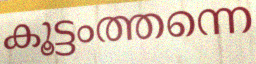
കൂട്ടംത്തന്നെ